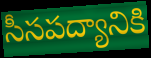
సీసపద్యానికి